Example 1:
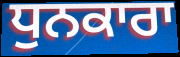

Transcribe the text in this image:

ਧੁਨਕਾਰਾ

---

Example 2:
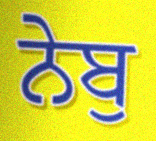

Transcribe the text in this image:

ਨੇਬੁ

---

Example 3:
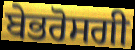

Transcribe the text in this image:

ਬੇਭਰੋਸਗੀ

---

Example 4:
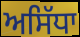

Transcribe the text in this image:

ਅਸਿੱਧਾ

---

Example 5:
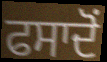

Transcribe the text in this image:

ਫਸਾਦੋਂ